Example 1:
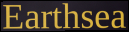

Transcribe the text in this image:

Earthsea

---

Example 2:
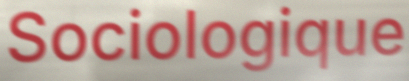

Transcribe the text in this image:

Sociologique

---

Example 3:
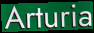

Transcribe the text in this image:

Arturia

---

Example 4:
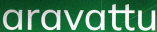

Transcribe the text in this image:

aravattu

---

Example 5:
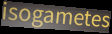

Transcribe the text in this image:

isogametes